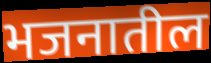
भजनातील